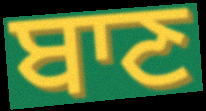
ਬਾਣ